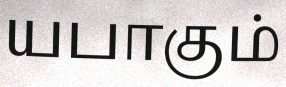
யபாகும்